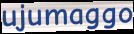
ujumaggo